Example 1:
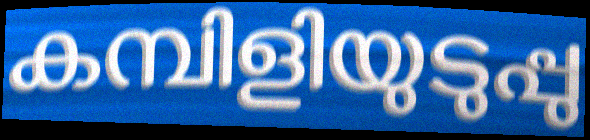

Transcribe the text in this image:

കമ്പിളിയുടുപ്പു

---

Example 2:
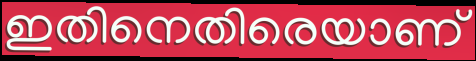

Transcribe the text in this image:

ഇതിനെതിരെയാണ്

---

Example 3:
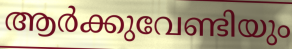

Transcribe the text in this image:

ആർക്കുവേണ്ടിയും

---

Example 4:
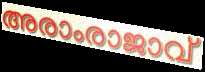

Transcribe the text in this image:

അരാംരാജാവ്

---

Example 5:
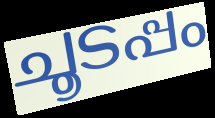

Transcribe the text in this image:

ചൂടപ്പം